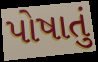
પોષાતું